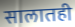
सालातही